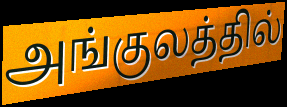
அங்குலத்தில்